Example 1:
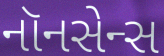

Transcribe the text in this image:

નૉનસેન્સ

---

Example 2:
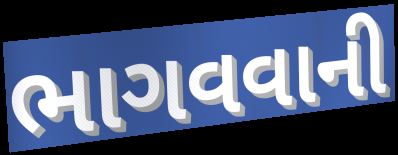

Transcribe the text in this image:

ભાગવવાની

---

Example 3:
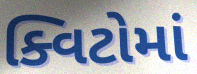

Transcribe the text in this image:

ક્વિટોમાં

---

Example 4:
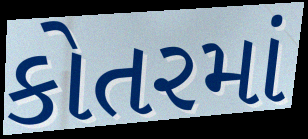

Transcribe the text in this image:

કોતરમાં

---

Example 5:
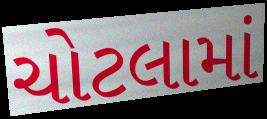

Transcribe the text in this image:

ચોટલામાં